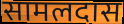
सामलदास